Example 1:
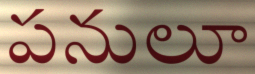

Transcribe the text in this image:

పనులూ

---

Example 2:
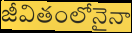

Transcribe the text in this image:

జీవితంలోనైనా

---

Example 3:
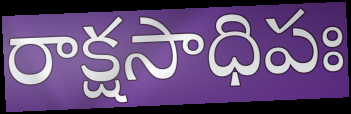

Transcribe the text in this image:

రాక్షసాధిపః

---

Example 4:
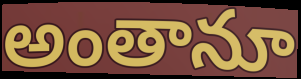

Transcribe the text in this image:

అంతానూ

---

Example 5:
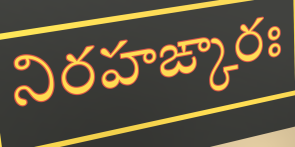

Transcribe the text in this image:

నిరహఙ్కారః